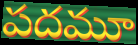
పదమూ